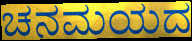
ಚನಮಯದ